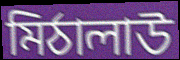
মিঠালাউ